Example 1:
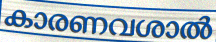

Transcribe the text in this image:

കാരണവശാൽ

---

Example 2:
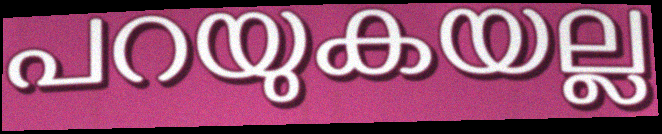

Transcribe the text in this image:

പറയുകയല്ല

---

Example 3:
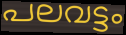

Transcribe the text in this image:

പലവട്ടം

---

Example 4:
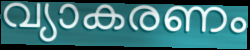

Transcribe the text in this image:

വ്യാകരണം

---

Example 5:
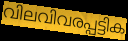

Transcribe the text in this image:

വിലവിവരപ്പട്ടിക